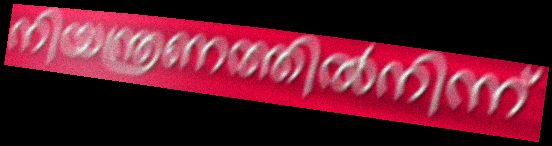
നിയന്ത്രണത്തിൽനിന്ന്